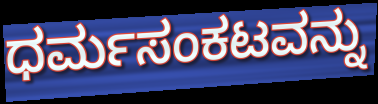
ಧರ್ಮಸಂಕಟವನ್ನು